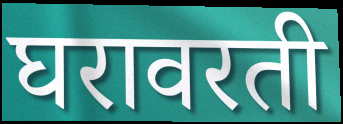
घरावरती